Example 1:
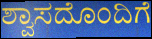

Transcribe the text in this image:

ಶ್ವಾಸದೊಂದಿಗೆ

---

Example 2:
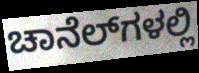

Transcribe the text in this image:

ಚಾನೆಲ್‍ಗಳಲ್ಲಿ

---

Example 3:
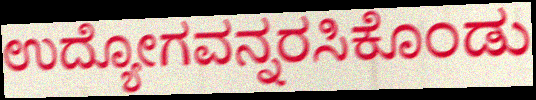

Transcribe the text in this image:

ಉದ್ಯೋಗವನ್ನರಸಿಕೊಂಡು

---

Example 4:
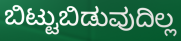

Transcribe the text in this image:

ಬಿಟ್ಟುಬಿಡುವುದಿಲ್ಲ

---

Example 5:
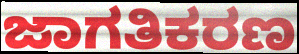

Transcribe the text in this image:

ಜಾಗತಿಕರಣ